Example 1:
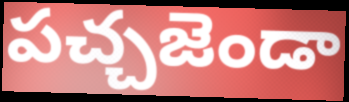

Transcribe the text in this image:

పచ్చజెండా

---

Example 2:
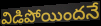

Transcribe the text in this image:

విడిపోయిందనే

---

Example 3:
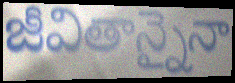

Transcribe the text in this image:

జీవితాన్నైనా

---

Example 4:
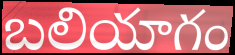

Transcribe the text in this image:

బలియాగం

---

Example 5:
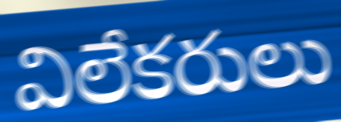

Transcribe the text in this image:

విలేకరులు